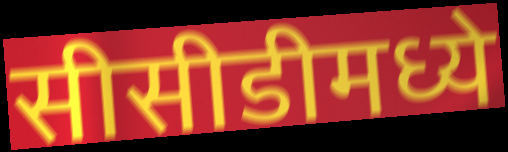
सीसीडीमध्ये